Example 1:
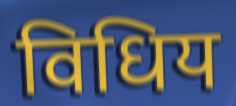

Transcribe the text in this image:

विधिय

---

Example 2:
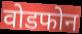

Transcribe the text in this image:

वोडफोन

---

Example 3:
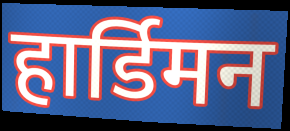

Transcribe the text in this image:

हार्डिमन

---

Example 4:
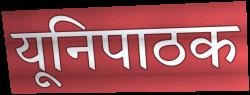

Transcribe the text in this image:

यूनिपाठक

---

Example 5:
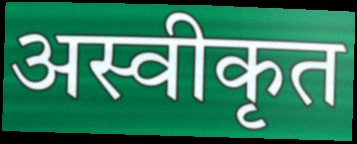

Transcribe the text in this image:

अस्‍वीकृत